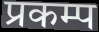
प्रकम्प